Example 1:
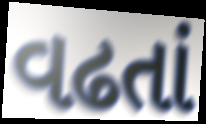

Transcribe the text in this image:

વઢતાં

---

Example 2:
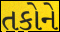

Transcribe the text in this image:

તકોને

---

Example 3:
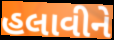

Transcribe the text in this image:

હલાવીને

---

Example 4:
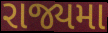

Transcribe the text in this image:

રાજ્યમા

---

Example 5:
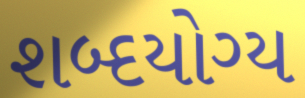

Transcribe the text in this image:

શબ્દયોગ્ય